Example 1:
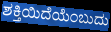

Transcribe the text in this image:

ಶಕ್ತಿಯಿದೆಯೆಂಬುದು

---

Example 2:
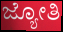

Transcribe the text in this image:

ಜ್ಯೋತಿ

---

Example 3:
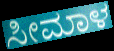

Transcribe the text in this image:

ಸೀಮಾಳ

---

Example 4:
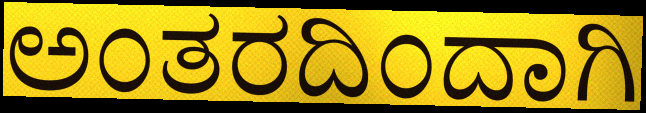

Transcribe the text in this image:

ಅಂತರದಿಂದಾಗಿ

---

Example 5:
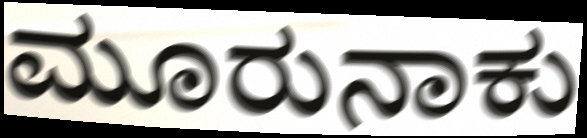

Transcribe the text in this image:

ಮೂರುನಾಕು